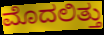
ಮೊದಲಿತ್ತು